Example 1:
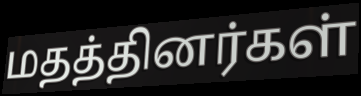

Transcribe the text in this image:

மதத்தினர்கள்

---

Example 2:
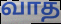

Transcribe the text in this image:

வாத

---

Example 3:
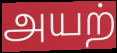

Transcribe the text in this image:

அயற்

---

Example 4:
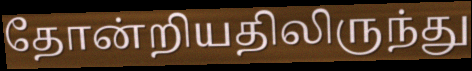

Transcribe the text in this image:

தோன்றியதிலிருந்து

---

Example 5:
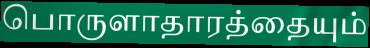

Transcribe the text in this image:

பொருளாதாரத்தையும்